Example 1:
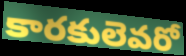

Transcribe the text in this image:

కారకులెవరో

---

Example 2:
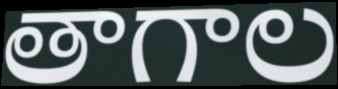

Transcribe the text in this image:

తాగాల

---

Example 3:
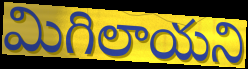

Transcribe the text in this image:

మిగిలాయని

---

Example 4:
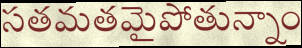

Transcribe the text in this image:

సతమతమైపోతున్నాం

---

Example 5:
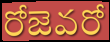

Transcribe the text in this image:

రోజెవరో